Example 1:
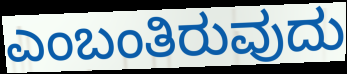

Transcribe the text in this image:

ಎಂಬಂತಿರುವುದು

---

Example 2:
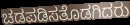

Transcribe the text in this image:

ಚಡಪಡಿಸತೊಡಗಿದರು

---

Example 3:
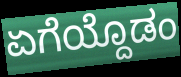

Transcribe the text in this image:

ಏಗೆಯ್ದೊಡಂ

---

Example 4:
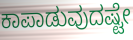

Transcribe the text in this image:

ಕಾಪಾಡುವುದಷ್ಟೇ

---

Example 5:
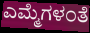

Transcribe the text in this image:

ಎಮ್ಮೆಗಳಂತೆ